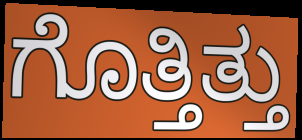
ಗೊತ್ತಿತ್ತು